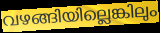
വഴങ്ങിയില്ലെങ്കിലും